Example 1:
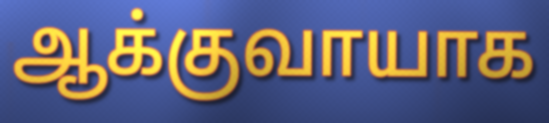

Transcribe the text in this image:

ஆக்குவாயாக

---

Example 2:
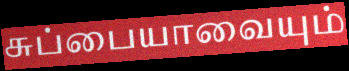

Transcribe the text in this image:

சுப்பையாவையும்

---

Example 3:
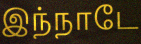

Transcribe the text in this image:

இந்நாடே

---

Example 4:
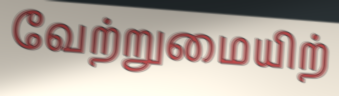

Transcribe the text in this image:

வேற்றுமையிற்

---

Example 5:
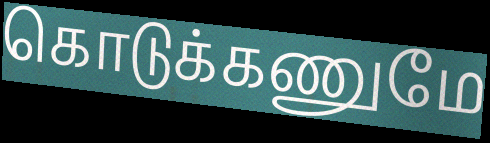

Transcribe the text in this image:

கொடுக்கணுமே